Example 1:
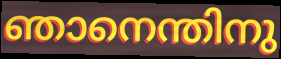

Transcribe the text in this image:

ഞാനെന്തിനു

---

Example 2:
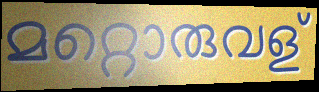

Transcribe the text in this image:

മറ്റൊരുവള്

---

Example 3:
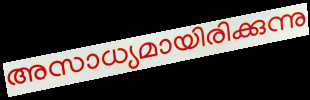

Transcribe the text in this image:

അസാധ്യമായിരിക്കുന്നു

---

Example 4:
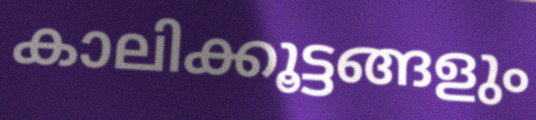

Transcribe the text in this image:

കാലിക്കൂട്ടങ്ങളും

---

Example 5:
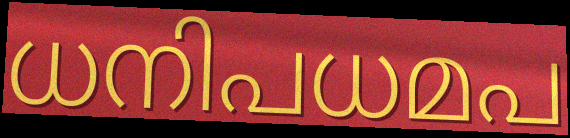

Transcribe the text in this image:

ധനിപധമപ